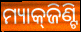
ମ୍ୟାକ୍‌ଜିଣ୍ଟି